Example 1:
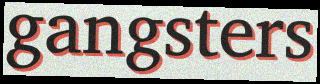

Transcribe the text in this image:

gangsters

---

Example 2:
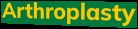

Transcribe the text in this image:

Arthroplasty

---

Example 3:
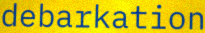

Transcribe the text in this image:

debarkation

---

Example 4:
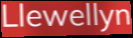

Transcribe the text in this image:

Llewellyn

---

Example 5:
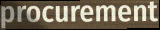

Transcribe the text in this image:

procurement